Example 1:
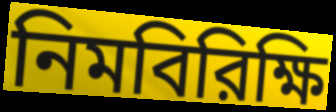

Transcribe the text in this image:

নিমবিরিক্ষি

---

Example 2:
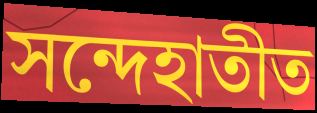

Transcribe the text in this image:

সন্দেহাতীত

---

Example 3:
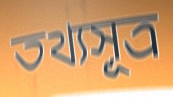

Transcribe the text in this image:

তথ্যসূত্র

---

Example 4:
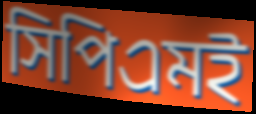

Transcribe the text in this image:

সিপিএমই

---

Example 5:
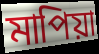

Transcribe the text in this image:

মাপিয়া